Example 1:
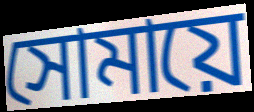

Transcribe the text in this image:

সোমায়ে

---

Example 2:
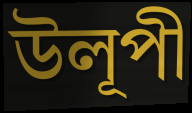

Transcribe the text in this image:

উলূপী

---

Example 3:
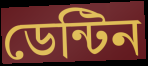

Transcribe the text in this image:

ডেন্টিন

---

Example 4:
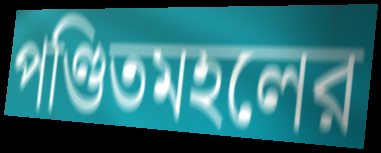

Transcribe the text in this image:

পণ্ডিতমহলের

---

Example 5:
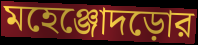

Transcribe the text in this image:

মহেঞ্জোদড়োর